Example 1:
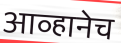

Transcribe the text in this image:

आव्हानेच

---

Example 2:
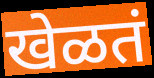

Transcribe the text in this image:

खेळतं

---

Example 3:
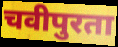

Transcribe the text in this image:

चवीपुरता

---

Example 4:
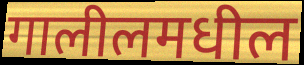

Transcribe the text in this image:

गालीलमधील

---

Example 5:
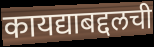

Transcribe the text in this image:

कायद्याबद्दलची